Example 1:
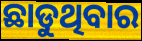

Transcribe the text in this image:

ଛାଡୁଥିବାର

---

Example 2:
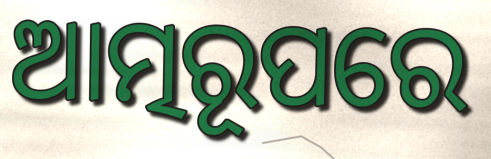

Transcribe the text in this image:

ଆତ୍ମରୂପରେ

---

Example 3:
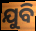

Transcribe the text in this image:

ଯୁବି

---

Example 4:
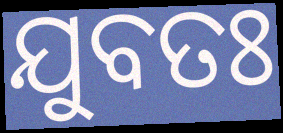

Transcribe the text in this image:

ଯୁବତଃ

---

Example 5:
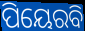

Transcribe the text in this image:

ପିୟେରବି